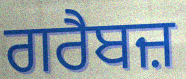
ਗਰੈਬਜ਼